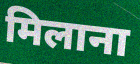
मिलाना